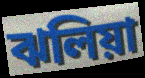
ঝলিয়া